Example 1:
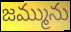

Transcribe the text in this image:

జమ్మును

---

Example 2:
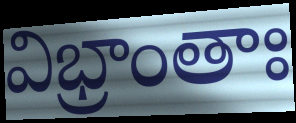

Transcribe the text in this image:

విభ్రాంతాః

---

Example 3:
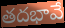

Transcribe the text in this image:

తదభావే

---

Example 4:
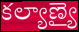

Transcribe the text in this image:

కల్యాణ్యై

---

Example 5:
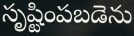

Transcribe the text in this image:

సృష్టింపబడెను